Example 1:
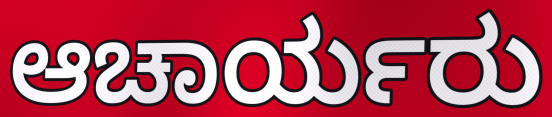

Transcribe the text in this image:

ಆಚಾರ್ಯರು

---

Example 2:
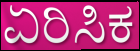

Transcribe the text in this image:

ಏರಿಸಿಕ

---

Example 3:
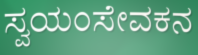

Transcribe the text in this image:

ಸ್ವಯಂಸೇವಕನ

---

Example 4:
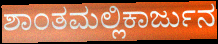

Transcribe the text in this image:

ಶಾಂತಮಲ್ಲಿಕಾರ್ಜುನ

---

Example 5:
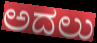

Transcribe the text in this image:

ಅದಲು